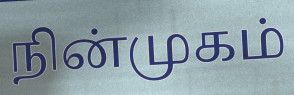
நின்முகம்